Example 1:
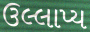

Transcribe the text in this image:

ઉલ્લાપ્ય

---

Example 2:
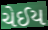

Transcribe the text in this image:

ચેઈય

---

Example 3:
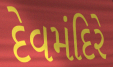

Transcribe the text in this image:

દેવમંદિરે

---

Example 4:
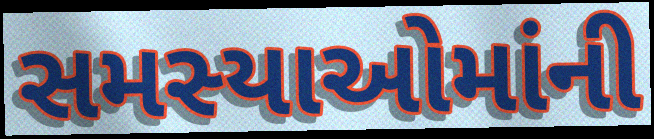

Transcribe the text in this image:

સમસ્યાઓમાંની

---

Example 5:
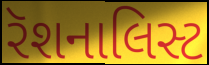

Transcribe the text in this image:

રૅશનાલિસ્ટ